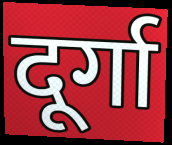
दूर्गा